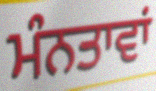
ਮੰਨਤਾਵਾਂ